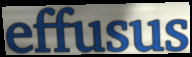
effusus